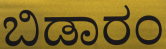
ಬಿಡಾರಂ